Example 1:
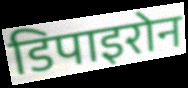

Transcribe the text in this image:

डिपाइरोन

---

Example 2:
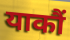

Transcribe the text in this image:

याकौं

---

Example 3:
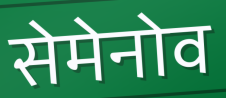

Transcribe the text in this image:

सेमेनोव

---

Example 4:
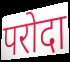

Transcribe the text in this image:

परोदा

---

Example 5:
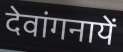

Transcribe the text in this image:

देवांगनायें